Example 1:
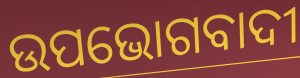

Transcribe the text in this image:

ଉପଭୋଗବାଦୀ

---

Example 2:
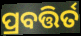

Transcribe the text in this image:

ପ୍ରବତ୍ତିର୍ତ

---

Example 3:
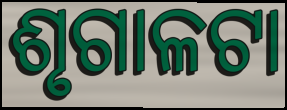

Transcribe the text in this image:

ଶୃଗାଳଟା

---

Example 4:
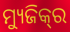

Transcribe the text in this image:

ମ୍ୟୁଜିକ୍‌ର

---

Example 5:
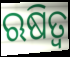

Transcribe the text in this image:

ଋଷିତ୍ୱ